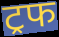
ट्रफ